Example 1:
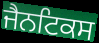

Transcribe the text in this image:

ਜੈਨਟਿਕਸ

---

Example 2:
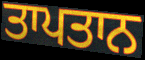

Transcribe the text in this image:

ਤਾਪਤਾਨ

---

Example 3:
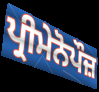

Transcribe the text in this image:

ਪ੍ਰੀਮੇਨੋਪੌਜ਼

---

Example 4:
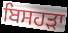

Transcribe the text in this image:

ਬਿਸਹੜਾ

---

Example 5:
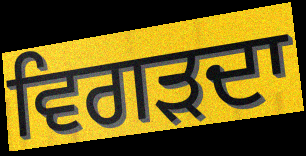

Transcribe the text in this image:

ਵਿਗੜਦਾ